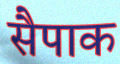
सैपाक